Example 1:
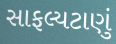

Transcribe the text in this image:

સાફલ્યટાણું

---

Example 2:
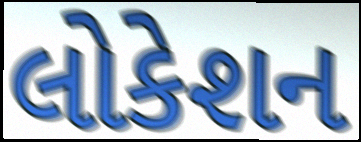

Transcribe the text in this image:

લોકેશન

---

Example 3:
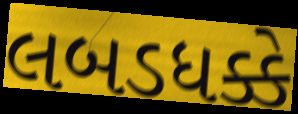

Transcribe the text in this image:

લબડધક્કે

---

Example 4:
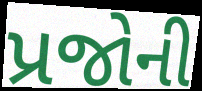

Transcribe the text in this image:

પ્રજોની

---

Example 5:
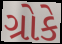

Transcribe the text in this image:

ગ્રોકે